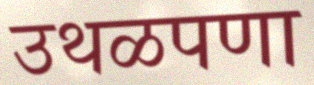
उथळपणा